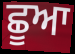
ਛੂਆ